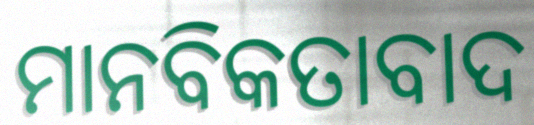
ମାନବିକତାବାଦ